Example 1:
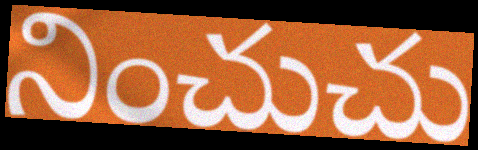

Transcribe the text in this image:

నించుచు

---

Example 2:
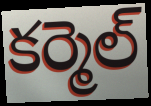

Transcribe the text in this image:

కర్మెల్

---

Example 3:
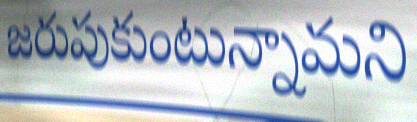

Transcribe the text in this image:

జరుపుకుంటున్నామని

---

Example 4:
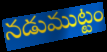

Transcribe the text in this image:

నడుముట్టం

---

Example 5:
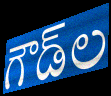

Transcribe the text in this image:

గౌడ్‌ల